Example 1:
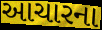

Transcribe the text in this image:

આચારના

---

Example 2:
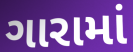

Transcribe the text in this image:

ગારામાં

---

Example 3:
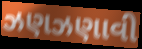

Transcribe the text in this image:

ઝણઝણાવી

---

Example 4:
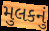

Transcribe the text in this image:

મુલકનું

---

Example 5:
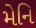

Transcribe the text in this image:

મેનિ